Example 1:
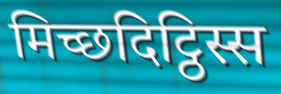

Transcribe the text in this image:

मिच्छदिट्ठिस्स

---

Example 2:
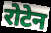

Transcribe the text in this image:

रोटेन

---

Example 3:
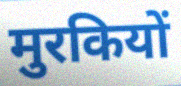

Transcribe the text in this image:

मुरकियों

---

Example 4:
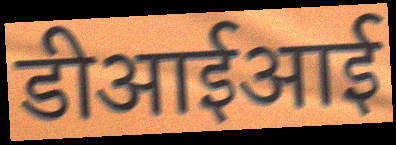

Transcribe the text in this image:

डीआईआई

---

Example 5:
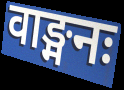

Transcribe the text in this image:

वाङ्मनः